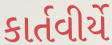
કાર્તવીર્યે